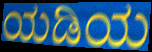
ಯಡಿಯ